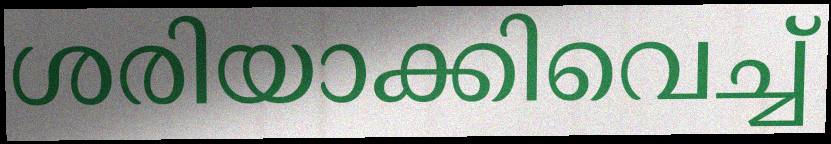
ശരിയാക്കിവെച്ച്